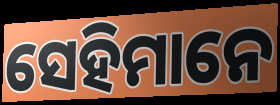
ସେହିମାନେ